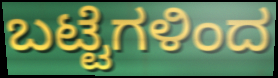
ಬಟ್ಟೆಗಳಿಂದ